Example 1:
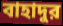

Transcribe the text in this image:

বাহাদুর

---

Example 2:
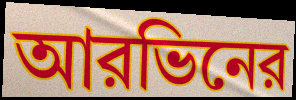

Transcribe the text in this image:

আরভিনের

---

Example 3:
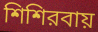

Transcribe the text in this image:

শিশিরবায়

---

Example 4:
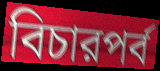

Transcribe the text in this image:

বিচারপর্ব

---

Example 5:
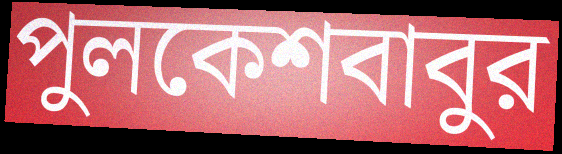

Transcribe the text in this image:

পুলকেশবাবুর